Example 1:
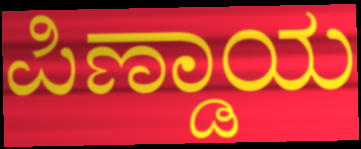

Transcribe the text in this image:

ಪಿಣ್ಡಾಯ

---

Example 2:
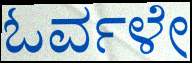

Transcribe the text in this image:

ಓರ್ವಳೇ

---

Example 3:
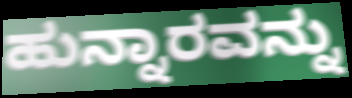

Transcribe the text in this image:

ಹುನ್ನಾರವನ್ನು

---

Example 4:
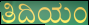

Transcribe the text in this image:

ತಿದಿಯಂ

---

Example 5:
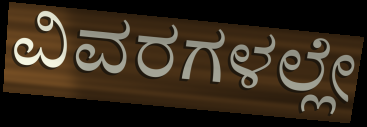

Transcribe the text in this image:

ವಿವರಗಳಲ್ಲೇ